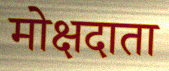
मोक्षदाता